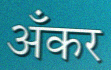
अँकर